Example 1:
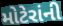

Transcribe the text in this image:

મોટેરાંની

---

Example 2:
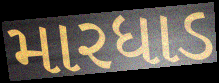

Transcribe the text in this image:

મારધાડ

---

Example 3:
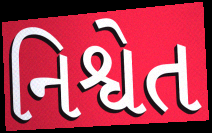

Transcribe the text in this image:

નિશ્વેત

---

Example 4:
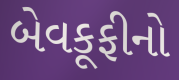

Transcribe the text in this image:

બેવકૂફીનો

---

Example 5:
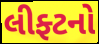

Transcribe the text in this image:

લીફ્ટનો